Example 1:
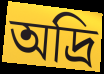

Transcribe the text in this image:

অদ্রি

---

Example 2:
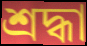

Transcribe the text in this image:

শ্রদ্ধা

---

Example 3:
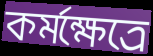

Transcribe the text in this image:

কর্মক্ষেত্রে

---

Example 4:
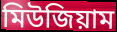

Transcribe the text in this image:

মিউজিয়াম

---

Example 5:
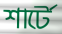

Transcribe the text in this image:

শার্টে